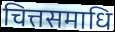
चित्तसमाधि